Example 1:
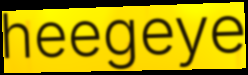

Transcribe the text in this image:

heegeye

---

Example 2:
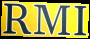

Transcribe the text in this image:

RMI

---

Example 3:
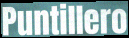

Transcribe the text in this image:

Puntillero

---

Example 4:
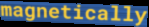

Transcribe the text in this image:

magnetically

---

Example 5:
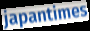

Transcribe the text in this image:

japantimes